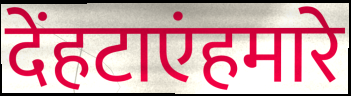
देंहटाएंहमारे